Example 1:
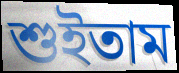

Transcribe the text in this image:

শুইতাম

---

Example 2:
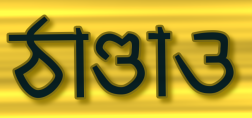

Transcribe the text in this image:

ঠাণ্ডাও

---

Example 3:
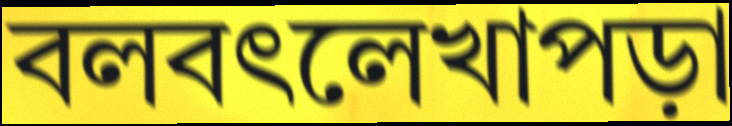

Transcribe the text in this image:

বলবৎলেখাপড়া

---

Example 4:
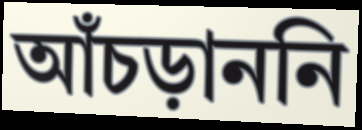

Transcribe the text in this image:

আঁচড়াননি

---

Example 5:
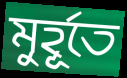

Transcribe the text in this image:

মুর্হূতে